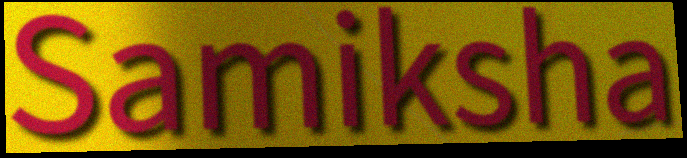
Samiksha